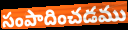
సంపాదించడము